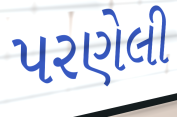
પરણેલી